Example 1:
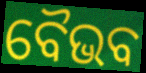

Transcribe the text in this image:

ବୈଭବ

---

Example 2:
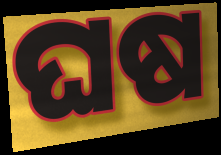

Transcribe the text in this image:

ଘଷ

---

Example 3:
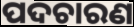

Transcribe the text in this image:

ପଦଚାରଣ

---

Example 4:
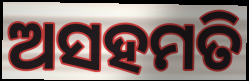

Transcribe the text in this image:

ଅସହମତି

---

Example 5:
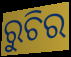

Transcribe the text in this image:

ରୁଚିର